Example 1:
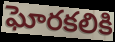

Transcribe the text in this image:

ఘోరకలికి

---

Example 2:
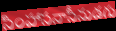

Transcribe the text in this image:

సింహాసనాసీనుడగు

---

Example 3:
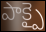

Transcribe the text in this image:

పాక్పై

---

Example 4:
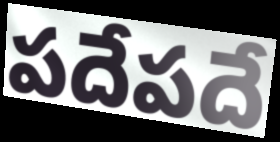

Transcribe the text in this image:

పదేపదే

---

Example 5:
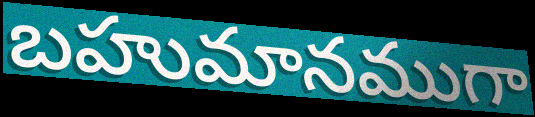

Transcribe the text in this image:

బహుమానముగా